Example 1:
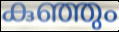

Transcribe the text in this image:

കുഞ്ഞും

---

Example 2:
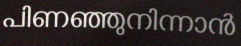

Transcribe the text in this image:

പിണഞ്ഞുനിന്നാൻ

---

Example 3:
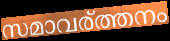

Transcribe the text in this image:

സമാവര്ത്തനം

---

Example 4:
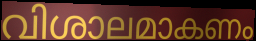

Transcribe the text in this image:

വിശാലമാകണം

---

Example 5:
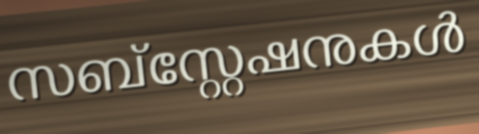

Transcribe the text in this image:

സബ്സ്റ്റേഷനുകൾ